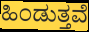
ಹಿಂಡುತ್ತವೆ